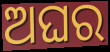
ଅଘର